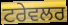
ਟਰੇਵਲਰ